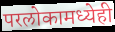
परलोकामध्येही